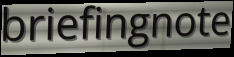
briefingnote